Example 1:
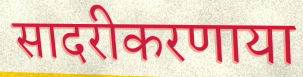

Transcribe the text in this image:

सादरीकरणाया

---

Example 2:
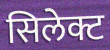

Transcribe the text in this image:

सिलेक्ट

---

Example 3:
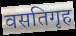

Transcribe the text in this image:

वसतिगृह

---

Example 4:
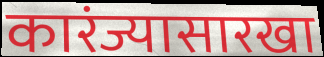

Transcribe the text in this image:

कारंज्यासारखा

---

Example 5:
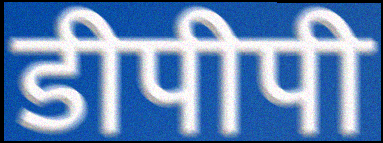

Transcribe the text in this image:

डीपीपी